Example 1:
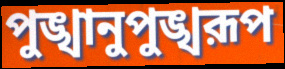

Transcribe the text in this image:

পুঙ্খানুপুঙ্খরূপ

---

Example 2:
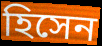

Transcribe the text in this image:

হিসেন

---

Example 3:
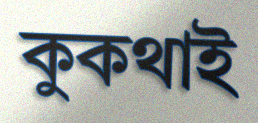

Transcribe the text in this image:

কুকথাই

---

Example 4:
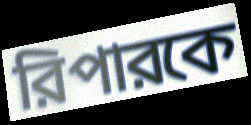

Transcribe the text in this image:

রিপারকে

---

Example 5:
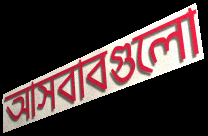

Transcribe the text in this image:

আসবাবগুলো